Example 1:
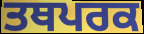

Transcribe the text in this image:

ਤਥਪਰਕ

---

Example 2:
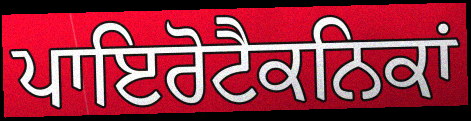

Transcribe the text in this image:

ਪਾਇਰੋਟੈਕਨਿਕਾਂ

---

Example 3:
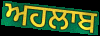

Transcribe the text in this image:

ਅਹਲਾਬ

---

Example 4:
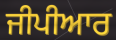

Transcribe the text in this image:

ਜੀਪੀਆਰ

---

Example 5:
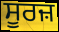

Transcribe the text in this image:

ਸੂਰਜ਼